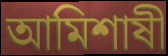
আমিশাষী